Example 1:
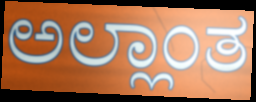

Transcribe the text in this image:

ಅಲ್ಲಾಂತ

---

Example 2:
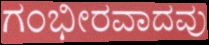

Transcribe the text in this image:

ಗಂಭೀರವಾದವು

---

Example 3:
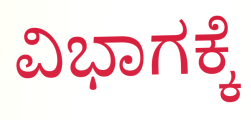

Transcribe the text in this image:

ವಿಭಾಗಕ್ಕೆ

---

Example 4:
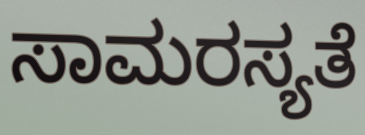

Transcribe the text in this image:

ಸಾಮರಸ್ಯತೆ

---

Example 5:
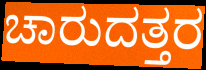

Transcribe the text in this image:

ಚಾರುದತ್ತರ